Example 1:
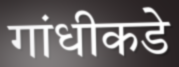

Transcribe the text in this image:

गांधीकडे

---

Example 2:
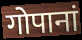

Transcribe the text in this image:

गोपानां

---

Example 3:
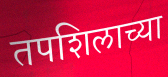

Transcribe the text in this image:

तपशिलाच्या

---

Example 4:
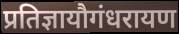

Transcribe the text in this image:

प्रतिज्ञायौगंधरायण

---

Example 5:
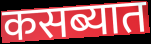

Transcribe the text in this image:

कसब्यात